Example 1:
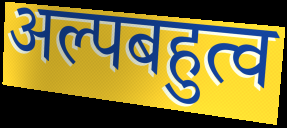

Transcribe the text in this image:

अल्पबहुत्व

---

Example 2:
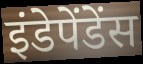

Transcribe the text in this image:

इंडेपेंडेंस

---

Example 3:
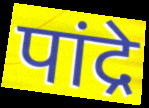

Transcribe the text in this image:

पांद्रे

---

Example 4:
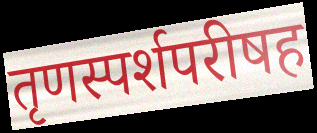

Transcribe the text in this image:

तृणस्पर्शपरीषह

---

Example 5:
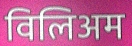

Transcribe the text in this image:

विलिअम